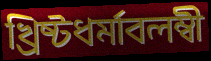
খ্রিষ্টধর্মাবলম্বী